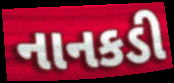
નાનકડી